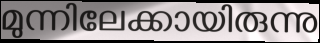
മുന്നിലേക്കായിരുന്നു